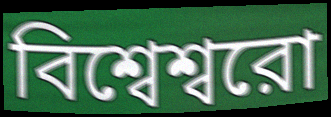
বিশ্বেশ্বরো